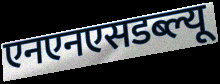
एनएनएसडब्ल्यू